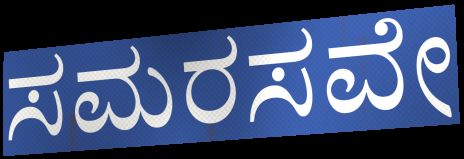
ಸಮರಸವೇ